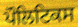
ਪੌਲਿਟਿਕਸ